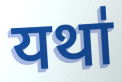
यथा॑